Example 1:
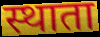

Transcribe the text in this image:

स्थाता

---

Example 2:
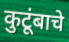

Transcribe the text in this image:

कुटूंबाचे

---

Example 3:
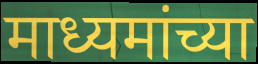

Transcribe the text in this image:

माध्यमांच्या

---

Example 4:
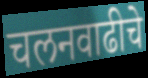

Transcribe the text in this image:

चलनवाढीचे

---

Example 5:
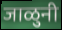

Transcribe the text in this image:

जाळुनी